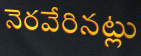
నెరవేరినట్లు